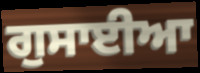
ਗੁਸਾਈਆ